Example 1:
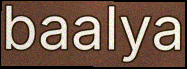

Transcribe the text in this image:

baalya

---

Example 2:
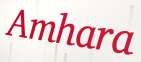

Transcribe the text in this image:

Amhara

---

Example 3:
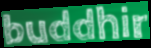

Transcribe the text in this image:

buddhir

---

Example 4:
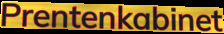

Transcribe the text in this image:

Prentenkabinet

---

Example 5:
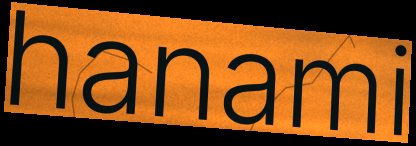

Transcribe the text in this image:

hanami